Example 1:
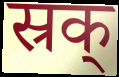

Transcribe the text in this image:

स्रक्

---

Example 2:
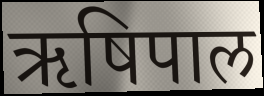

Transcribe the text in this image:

ऋषिपाल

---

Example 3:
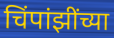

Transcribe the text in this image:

चिंपांझींच्या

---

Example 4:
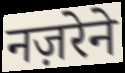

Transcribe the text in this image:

नज़रेने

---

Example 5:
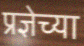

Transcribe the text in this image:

प्रज्ञेच्या